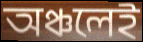
অঞ্চলেই